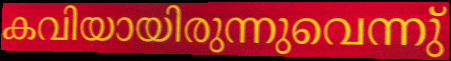
കവിയായിരുന്നുവെന്നു്